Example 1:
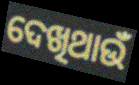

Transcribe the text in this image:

ଦେଖିଥାଉଁ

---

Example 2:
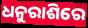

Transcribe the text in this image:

ଧନୁରାଶିରେ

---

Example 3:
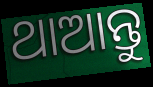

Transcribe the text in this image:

ଥାଆନ୍ତୁ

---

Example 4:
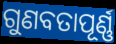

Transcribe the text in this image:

ଗୁଣବତାପୂର୍ଣ୍ଣ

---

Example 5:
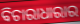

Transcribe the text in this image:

ବିଚାରାଧାରାର